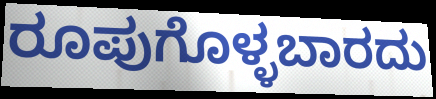
ರೂಪುಗೊಳ್ಳಬಾರದು